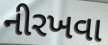
નીરખવા